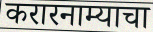
करारनाम्याचा